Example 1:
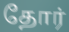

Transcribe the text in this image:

தோர்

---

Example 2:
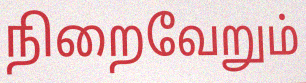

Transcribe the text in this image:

நிறைவேறும்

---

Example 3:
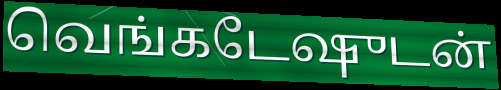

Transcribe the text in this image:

வெங்கடேஷுடன்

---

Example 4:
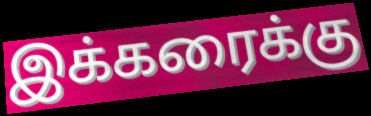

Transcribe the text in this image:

இக்கரைக்கு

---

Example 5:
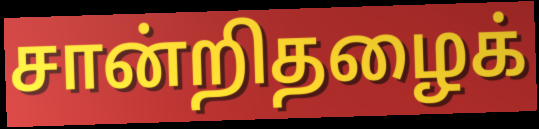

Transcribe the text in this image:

சான்றிதழைக்